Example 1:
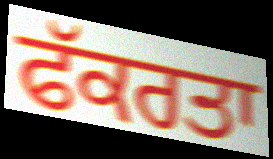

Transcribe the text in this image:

ਫੱਕਰਤਾ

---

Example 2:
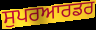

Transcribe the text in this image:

ਸੁਪਰਆਰਡਰ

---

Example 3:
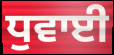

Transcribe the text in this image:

ਧੁਵਾਈ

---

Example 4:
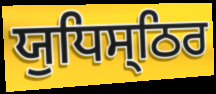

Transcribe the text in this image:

ਯੁਧਿਸ੍ਠਿਰ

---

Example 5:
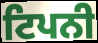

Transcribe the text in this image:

ਟਿਪਨੀ